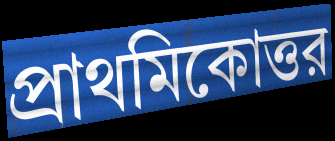
প্রাথমিকোত্তর